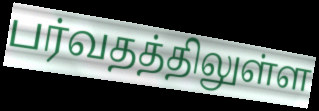
பர்வதத்திலுள்ள